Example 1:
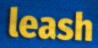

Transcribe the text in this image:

leash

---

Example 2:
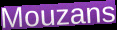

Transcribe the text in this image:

Mouzans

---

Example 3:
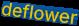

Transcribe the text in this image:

deflower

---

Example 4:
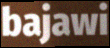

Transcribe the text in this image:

bajawi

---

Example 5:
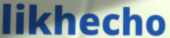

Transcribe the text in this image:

likhecho